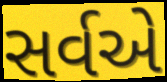
સર્વએ